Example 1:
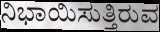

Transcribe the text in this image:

ನಿಭಾಯಿಸುತ್ತಿರುವ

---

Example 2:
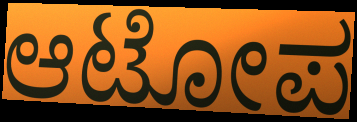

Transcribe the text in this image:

ಆಟೋಪ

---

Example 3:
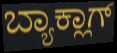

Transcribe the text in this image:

ಬ್ಯಾಕ್ಲಾಗ್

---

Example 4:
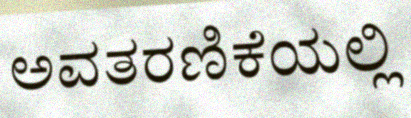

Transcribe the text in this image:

ಅವತರಣಿಕೆಯಲ್ಲಿ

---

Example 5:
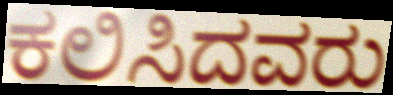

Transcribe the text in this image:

ಕಲಿಸಿದವರು